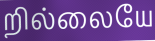
றில்லையே